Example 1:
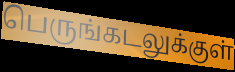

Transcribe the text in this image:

பெருங்கடலுக்குள்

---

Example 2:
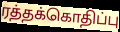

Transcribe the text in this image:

ரத்தக்கொதிப்பு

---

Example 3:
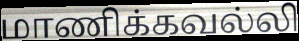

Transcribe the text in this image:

மாணிக்கவல்லி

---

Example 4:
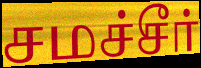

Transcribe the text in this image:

சமச்சீர்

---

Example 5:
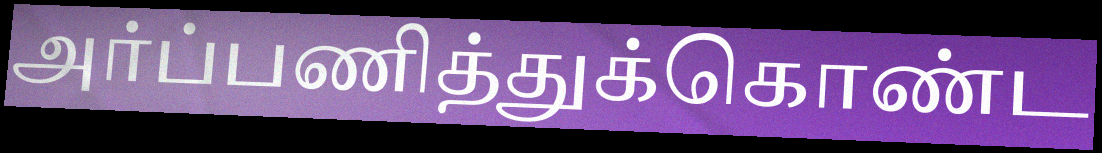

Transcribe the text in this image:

அர்ப்பணித்துக்கொண்ட